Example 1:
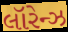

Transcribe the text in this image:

લૉરેન્ઝ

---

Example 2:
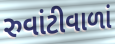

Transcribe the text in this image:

રુવાંટીવાળાં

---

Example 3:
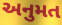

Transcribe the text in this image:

અનુમત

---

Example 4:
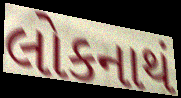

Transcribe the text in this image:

લોકનાથં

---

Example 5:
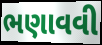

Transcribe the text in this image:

ભણાવવી